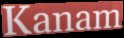
Kanam